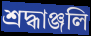
শ্রদ্ধাঞ্জলি